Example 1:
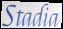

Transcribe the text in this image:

Stadia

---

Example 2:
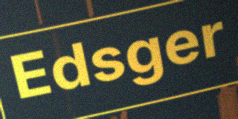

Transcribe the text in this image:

Edsger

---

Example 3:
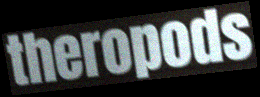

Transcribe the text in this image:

theropods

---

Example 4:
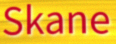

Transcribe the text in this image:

Skane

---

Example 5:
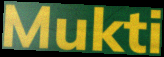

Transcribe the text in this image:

Mukti